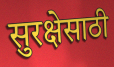
सुरक्षेसाठी